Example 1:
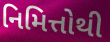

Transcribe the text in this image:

નિમિત્તોથી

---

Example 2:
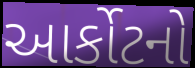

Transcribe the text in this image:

આર્કોટનો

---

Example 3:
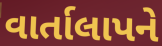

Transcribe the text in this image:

વાર્તાલાપને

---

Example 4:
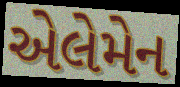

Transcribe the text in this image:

એલેમેન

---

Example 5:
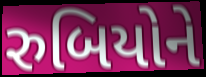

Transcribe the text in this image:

રુબિયોને